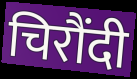
चिरौंदी